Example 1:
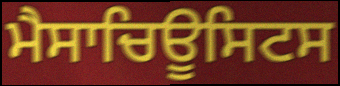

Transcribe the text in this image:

ਮੈਸਾਚਿਊਸਿਟਸ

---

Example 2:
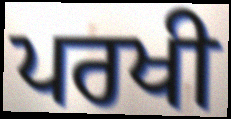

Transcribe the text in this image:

ਪਰਖੀ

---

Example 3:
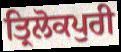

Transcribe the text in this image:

ਤ੍ਰਿਲੋਕਪੁਰੀ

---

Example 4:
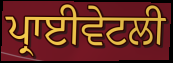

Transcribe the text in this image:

ਪ੍ਰਾਈਵੇਟਲੀ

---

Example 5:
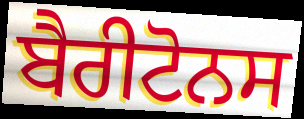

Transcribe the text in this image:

ਬੈਰੀਟੋਨਸ